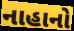
નાહાનો